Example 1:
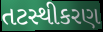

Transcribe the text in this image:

તટસ્થીકરણ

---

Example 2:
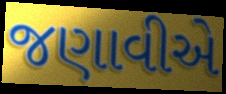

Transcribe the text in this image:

જણાવીએ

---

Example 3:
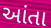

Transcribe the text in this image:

આંતા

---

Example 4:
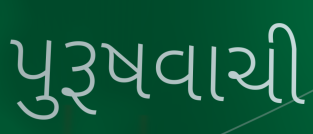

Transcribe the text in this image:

પુરૂષવાચી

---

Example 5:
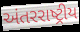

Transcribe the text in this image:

અંતરરાષ્ટ્રીય